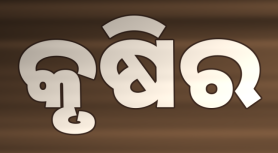
କୃଷିର